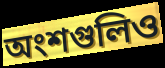
অংশগুলিও